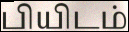
பியிடம்